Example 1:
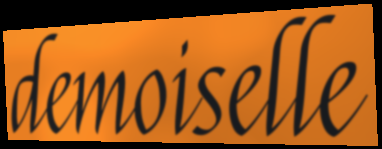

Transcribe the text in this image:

demoiselle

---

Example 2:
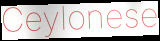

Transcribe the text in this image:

Ceylonese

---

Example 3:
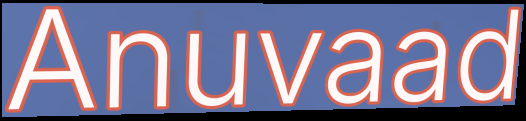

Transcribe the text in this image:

Anuvaad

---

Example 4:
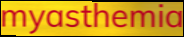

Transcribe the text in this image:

myasthemia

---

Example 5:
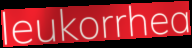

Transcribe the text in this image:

leukorrhea